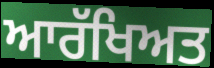
ਆਰੱਖਿਅਤ